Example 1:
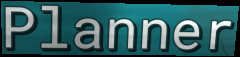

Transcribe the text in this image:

Planner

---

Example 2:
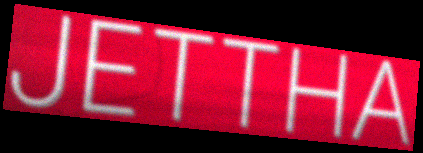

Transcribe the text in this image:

JETTHA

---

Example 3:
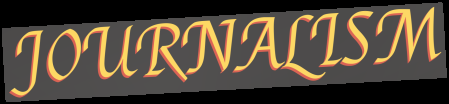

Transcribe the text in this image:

JOURNALISM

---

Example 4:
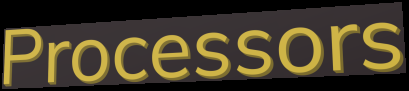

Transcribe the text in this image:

Processors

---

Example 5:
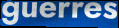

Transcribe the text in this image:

guerres